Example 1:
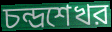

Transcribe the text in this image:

চন্দ্রশেখর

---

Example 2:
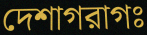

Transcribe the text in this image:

দেশাগরাগঃ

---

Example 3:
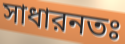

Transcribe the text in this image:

সাধারনতঃ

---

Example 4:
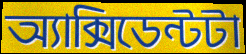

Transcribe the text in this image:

অ্যাক্সিডেন্টটা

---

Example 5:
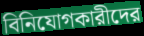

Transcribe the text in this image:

বিনিযোগকারীদের